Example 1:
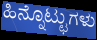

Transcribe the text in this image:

ಹಿನ್ನೊಟ್ಟುಗಳು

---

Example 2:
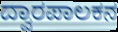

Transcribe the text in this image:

ದ್ವಾರಪಾಲಕನ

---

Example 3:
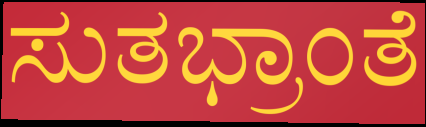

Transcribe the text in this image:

ಸುತಭ್ರಾಂತೆ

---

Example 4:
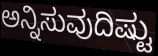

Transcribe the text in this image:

ಅನ್ನಿಸುವುದಿಷ್ಟು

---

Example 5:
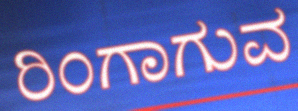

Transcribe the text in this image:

ರಿಂಗಾಗುವ